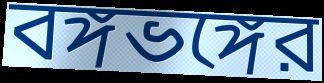
বঙ্গভঙ্গের